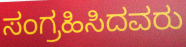
ಸಂಗ್ರಹಿಸಿದವರು